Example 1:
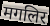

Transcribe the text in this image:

मगलिर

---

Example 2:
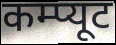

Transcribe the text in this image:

कम्प्यूट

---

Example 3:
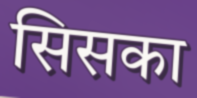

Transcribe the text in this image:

सिसका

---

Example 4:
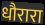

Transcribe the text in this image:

धौरारा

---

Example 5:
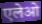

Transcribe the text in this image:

एलेओ